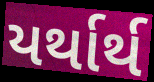
યર્થાર્થ